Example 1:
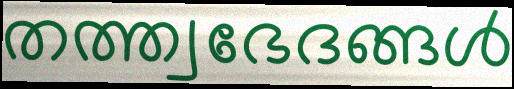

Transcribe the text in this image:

തത്ത്വഭേദങ്ങൾ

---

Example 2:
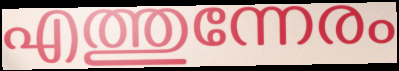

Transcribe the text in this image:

എത്തുന്നേരം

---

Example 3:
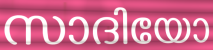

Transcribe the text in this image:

സാദിയോ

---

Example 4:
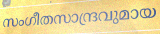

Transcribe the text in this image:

സംഗീതസാന്ദ്രവുമായ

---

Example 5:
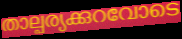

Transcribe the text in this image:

താല്പര്യക്കുറവോടെ